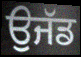
ਉਜੱਡ